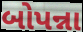
બોપન્ના